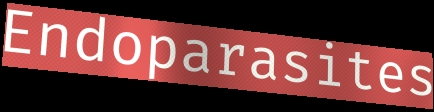
Endoparasites